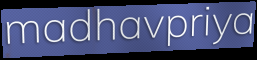
madhavpriya